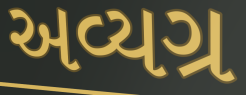
અવ્યગ્ર